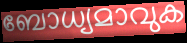
ബോധ്യമാവുക